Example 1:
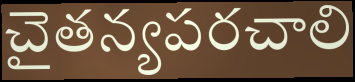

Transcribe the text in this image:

చైతన్యపరచాలి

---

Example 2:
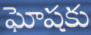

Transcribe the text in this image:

ఘోషకు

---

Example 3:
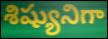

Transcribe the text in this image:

శిష్యునిగా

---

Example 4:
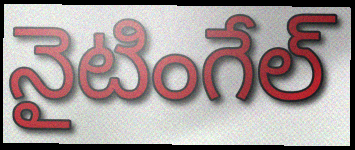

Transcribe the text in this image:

నైటింగేల్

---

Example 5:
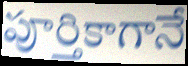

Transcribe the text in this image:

పూర్తికాగానే